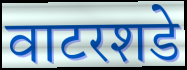
वाटरशडे